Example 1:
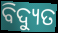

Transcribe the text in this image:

ବିଦ୍ଯୁତ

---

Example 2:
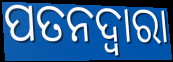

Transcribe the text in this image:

ପତନଦ୍ୱାରା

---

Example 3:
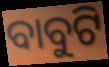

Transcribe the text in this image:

ବାବୁଟି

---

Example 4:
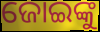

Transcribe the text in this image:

ଜୋଇଙ୍କୁ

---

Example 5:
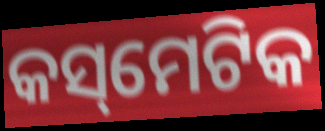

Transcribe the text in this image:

କସ୍‌ମେଟିକ